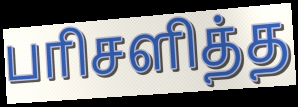
பரிசளித்த